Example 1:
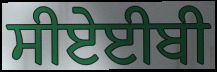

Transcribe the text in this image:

ਸੀਏਈਬੀ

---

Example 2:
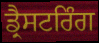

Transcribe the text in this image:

ਡ੍ਰੈਸਟਰਿੰਗ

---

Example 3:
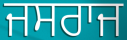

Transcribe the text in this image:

ਜਸਰਾਜ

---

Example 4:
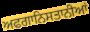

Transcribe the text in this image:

ਅਫਗਾਨਿਸਤਾਨੀਆਂ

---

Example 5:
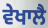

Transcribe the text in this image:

ਵੇਖਾਲੈ